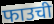
फाउची